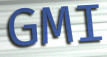
GMI